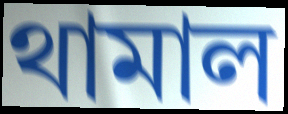
থামাল